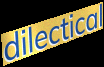
dilectical